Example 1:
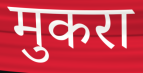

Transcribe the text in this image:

मुकरा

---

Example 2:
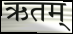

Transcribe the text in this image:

ऋतम्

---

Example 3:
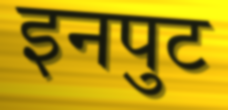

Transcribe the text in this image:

इनपुट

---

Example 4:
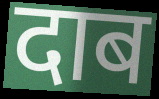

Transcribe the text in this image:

दाब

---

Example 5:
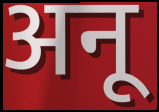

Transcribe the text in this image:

अनू